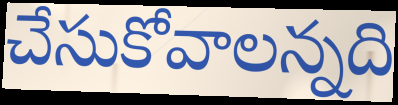
చేసుకోవాలన్నది